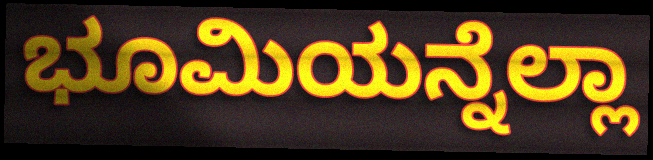
ಭೂಮಿಯನ್ನೆಲ್ಲಾ